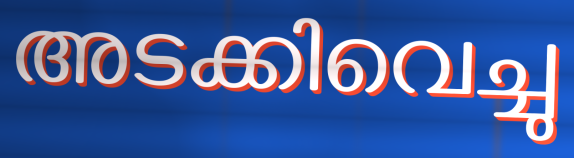
അടക്കിവെച്ചു